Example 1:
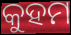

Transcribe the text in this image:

କୁହମ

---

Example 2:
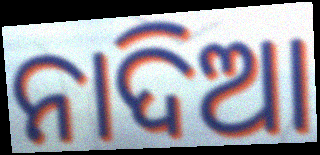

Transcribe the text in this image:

ନାଦିଆ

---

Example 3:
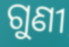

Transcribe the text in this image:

ଗୁଣୀ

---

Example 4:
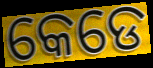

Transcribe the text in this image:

କେଡେ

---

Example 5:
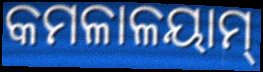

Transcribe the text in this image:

କମଳାଳୟାମ୍